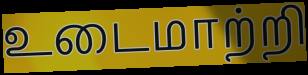
உடைமாற்றி